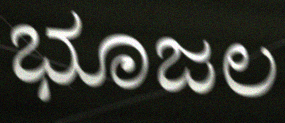
ಭೂಜಲ